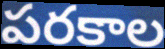
పరకాల